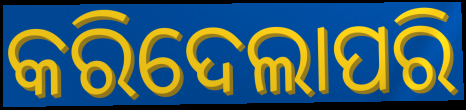
କରିଦେଲାପରି